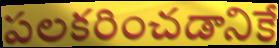
పలకరించడానికే